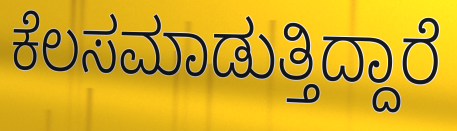
ಕೆಲಸಮಾಡುತ್ತಿದ್ದಾರೆ